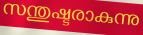
സന്തുഷ്ടരാകുന്നു